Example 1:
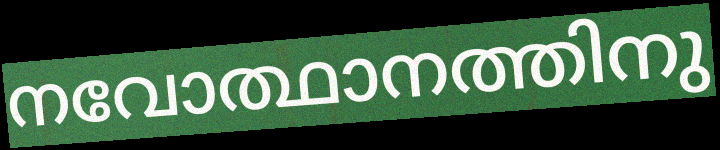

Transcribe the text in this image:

നവോത്ഥാനത്തിനു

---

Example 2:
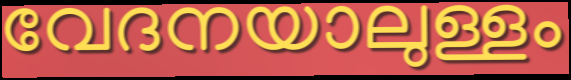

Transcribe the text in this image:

വേദനയാലുള്ളം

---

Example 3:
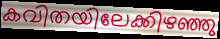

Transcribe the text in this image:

കവിതയിലേക്കിഴഞ്ഞു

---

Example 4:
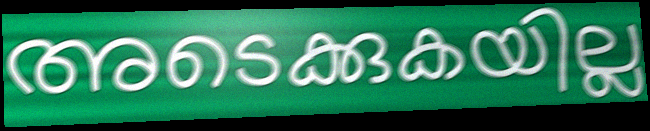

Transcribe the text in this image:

അടെക്കുകയില്ല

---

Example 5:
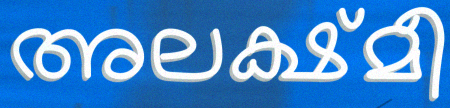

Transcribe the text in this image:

അലക്ഷ്മീ